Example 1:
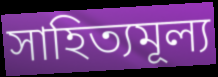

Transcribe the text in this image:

সাহিত্যমূল্য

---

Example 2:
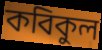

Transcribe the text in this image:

কবিকুল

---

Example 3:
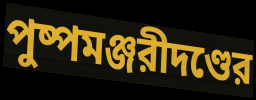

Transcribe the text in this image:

পুষ্পমঞ্জরীদণ্ডের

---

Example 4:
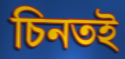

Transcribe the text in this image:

চিনতই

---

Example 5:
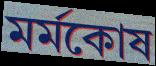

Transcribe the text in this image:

মর্মকোষ